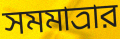
সমমাত্রার